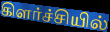
கிளர்ச்சியில்